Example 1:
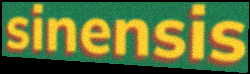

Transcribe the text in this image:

sinensis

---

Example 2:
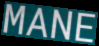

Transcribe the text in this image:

MANE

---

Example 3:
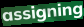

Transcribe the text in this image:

assigning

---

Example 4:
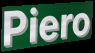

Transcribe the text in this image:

Piero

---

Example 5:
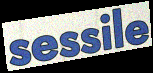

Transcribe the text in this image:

sessile